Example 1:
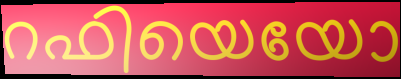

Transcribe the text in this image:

റഫിയെയോ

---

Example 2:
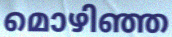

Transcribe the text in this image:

മൊഴിഞ്ഞ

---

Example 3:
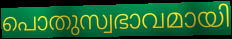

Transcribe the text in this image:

പൊതുസ്വഭാവമായി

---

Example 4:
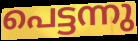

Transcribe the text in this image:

പെട്ടന്നു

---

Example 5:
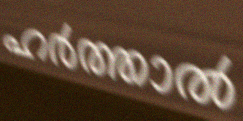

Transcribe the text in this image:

ഹർത്താൽ